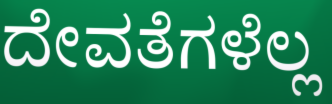
ದೇವತೆಗಳೆಲ್ಲ